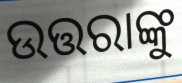
ଉତ୍ତରାଙ୍କୁ